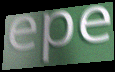
epe